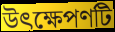
উৎক্ষেপণটি